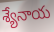
శ్యేనాయ